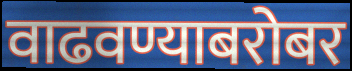
वाढवण्याबरोबर